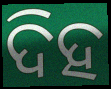
ଦିହ